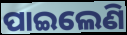
ପାଇଲେଣି